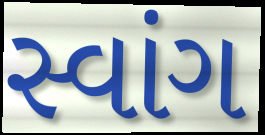
સ્વાંગ